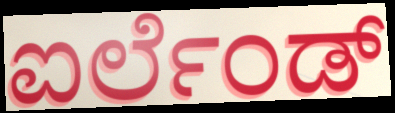
ಐರ್ಲೆಂಡ್